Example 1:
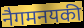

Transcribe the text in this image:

नैगमनयकी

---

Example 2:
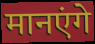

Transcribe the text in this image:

मानएंगे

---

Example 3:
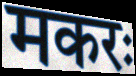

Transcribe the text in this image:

मकरः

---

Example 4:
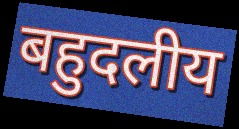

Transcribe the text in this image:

बहुदलीय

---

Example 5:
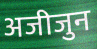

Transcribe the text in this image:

अजीजुन